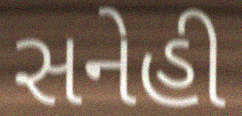
સનેહી